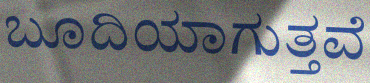
ಬೂದಿಯಾಗುತ್ತವೆ